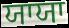
ਯਾਯਾ